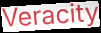
Veracity